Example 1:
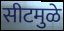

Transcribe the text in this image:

सीटमुळे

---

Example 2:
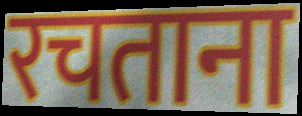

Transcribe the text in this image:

रचताना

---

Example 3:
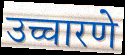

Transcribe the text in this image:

उच्चारणे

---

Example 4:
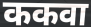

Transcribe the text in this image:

ककवा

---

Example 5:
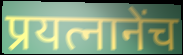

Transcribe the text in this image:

प्रयत्नानेंच